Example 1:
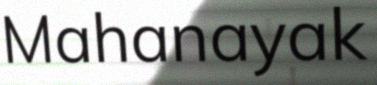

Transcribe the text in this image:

Mahanayak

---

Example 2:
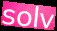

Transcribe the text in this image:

solv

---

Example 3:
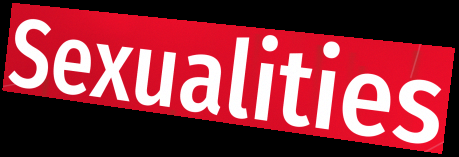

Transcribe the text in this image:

Sexualities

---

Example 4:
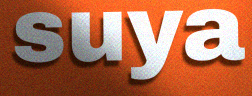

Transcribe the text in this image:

suya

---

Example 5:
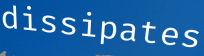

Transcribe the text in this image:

dissipates